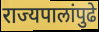
राज्यपालांपुढे